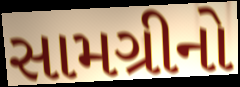
સામગ્રીનો